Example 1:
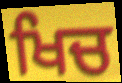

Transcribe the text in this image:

ਖਿਚ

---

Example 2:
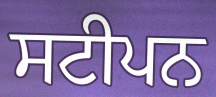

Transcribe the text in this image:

ਸਟੀਪਨ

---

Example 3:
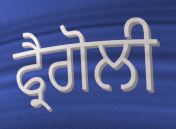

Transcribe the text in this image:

ਫ੍ਰੈਗੋਲੀ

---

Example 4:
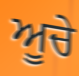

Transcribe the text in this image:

ਅੂਚੇ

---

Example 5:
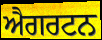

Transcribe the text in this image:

ਐਗਰਟਨ